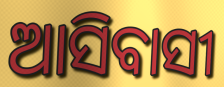
ଆସିବାସୀ